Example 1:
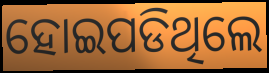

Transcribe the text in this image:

ହୋଇପଡିଥିଲେ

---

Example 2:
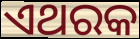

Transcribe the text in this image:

ଏଥରକ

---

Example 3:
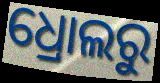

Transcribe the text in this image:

ଧ୍ରୋଲରୁ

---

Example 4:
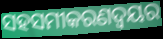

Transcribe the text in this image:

ସହସମୀକରଣଦ୍ୱୟର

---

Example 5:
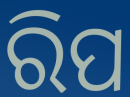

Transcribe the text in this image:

ରିପ